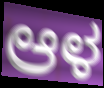
ಆಳ